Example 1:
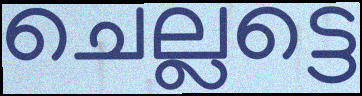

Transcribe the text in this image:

ചെല്ലട്ടെ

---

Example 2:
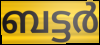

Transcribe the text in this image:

ബട്ടർ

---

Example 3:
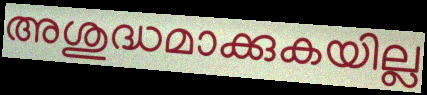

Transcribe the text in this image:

അശുദ്ധമാക്കുകയില്ല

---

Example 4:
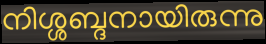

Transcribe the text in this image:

നിശ്ശബ്ദനായിരുന്നു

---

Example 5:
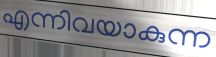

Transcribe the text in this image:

എന്നിവയാകുന്ന